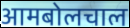
आमबोलचाल